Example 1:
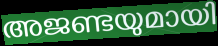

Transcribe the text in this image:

അജണ്ടയുമായി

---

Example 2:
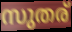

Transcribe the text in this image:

സുതര്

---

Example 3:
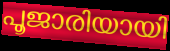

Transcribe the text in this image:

പൂജാരിയായി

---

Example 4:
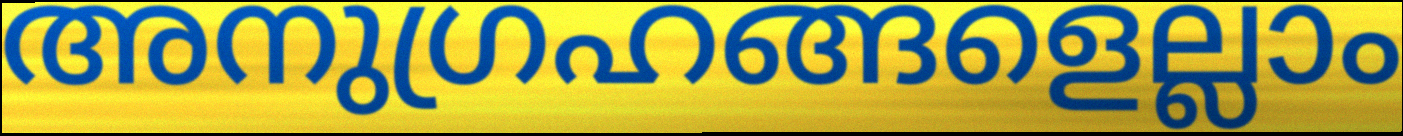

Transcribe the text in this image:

അനുഗ്രഹങ്ങളെല്ലാം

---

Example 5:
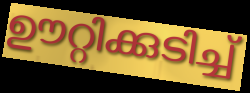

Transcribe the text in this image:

ഊറ്റിക്കുടിച്ച്